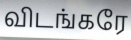
விடங்கரே